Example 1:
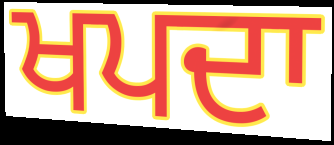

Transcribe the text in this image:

ਖਪਦਾ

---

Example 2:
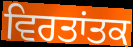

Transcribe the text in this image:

ਵਿਰਤਾਂਤਕ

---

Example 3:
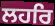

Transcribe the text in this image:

ਲਹਰਿ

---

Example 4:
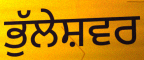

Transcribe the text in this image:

ਭੁੱਲੇਸ਼ਵਰ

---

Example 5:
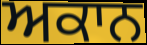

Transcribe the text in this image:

ਅਕਾਨ